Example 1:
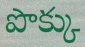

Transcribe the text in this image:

పొక్కు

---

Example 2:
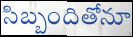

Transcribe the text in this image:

సిబ్బందితోనూ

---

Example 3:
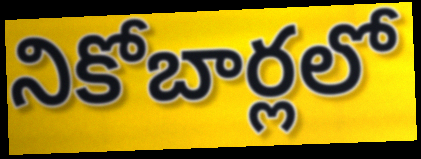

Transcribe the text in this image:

నికోబార్లలో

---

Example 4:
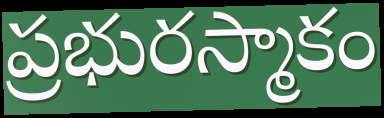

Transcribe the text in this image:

ప్రభురస్మాకం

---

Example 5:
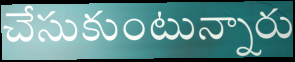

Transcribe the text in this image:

చేసుకుంటున్నారు